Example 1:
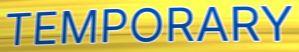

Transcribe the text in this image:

TEMPORARY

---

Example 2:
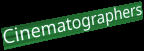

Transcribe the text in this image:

Cinematographers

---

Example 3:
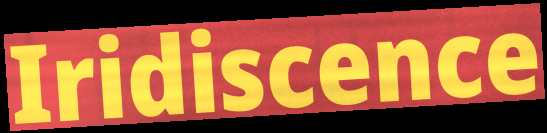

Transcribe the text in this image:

Iridiscence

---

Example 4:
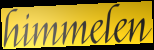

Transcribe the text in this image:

himmelen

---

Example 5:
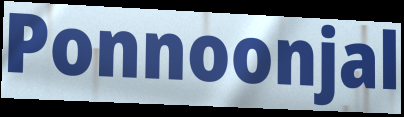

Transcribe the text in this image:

Ponnoonjal